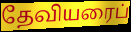
தேவியரைப்